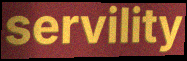
servility